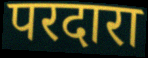
परदारा